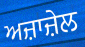
ਅਜ਼ਾਜ਼ੇਲ